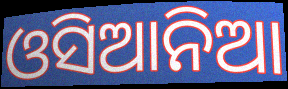
ଓସିଆନିଆ